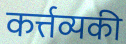
कर्त्तव्यकी